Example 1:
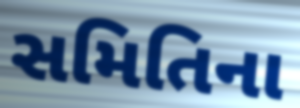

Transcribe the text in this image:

સમિતિના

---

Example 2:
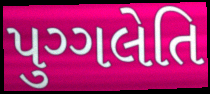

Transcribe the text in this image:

પુગ્ગલેતિ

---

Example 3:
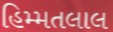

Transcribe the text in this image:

હિમ્મતલાલ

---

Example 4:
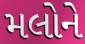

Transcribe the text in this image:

મલોને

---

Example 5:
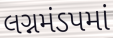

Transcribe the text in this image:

લગ્નમંડપમાં